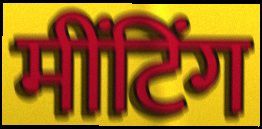
मींटिंग